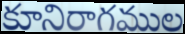
కూనిరాగముల